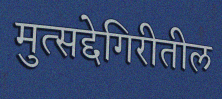
मुत्सद्देगिरीतील